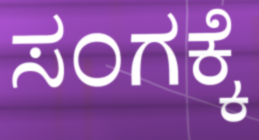
ಸಂಗಕ್ಕೆ